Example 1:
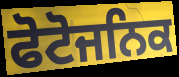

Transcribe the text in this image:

ਫੋਟੋਜਨਿਕ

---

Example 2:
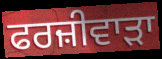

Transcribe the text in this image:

ਫਰਜ਼ੀਵਾੜਾ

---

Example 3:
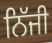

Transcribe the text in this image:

ਨਿੱਜੀ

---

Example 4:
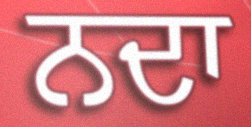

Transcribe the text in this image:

ਨਦਾ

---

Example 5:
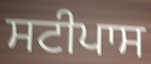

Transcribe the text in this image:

ਸਟੀਪਾਸ